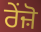
ਰੇਂਜ਼ੋ